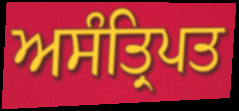
ਅਸੰਤ੍ਰਿਪਤ